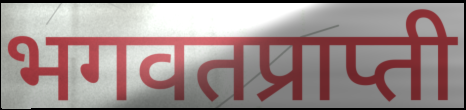
भगवतप्राप्ती